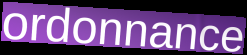
ordonnance